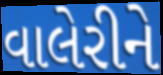
વાલેરીને